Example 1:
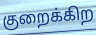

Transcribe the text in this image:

குறைக்கிற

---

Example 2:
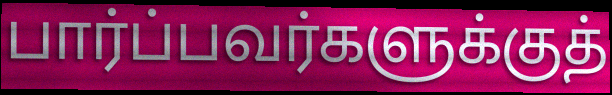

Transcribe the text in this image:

பார்ப்பவர்களுக்குத்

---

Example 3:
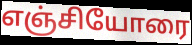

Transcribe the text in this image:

எஞ்சியோரை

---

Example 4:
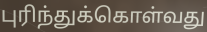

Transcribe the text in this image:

புரிந்துக்கொள்வது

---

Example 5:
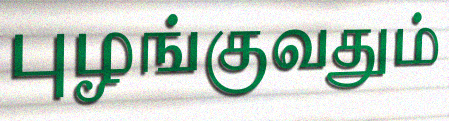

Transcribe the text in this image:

புழங்குவதும்